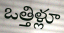
ఒత్తిళ్లూ